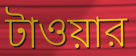
টাওয়ার